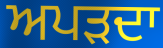
ਅਪੜਦਾ